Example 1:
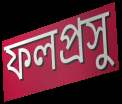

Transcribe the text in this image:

ফলপ্ৰসু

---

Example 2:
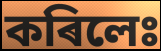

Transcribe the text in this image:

কৰিলেঃ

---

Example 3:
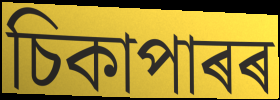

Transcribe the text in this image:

চিকাপাৰৰ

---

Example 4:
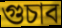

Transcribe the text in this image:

গুচাব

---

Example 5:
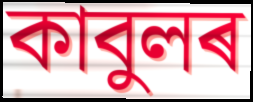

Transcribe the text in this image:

কাবুলৰ